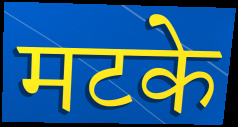
मटके